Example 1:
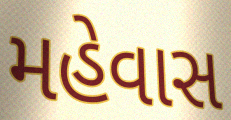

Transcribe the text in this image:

મહેવાસ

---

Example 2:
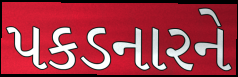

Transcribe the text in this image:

પકડનારને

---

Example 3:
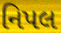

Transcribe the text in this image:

નિપલ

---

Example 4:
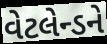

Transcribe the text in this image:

વેટલેન્ડને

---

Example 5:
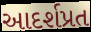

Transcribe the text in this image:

આદર્શપ્રત